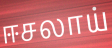
ஈசலாய்